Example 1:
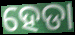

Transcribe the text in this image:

ହେଡା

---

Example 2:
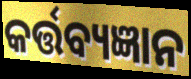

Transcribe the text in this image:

କର୍ତ୍ତବ୍ୟଜ୍ଞାନ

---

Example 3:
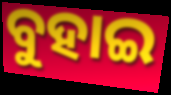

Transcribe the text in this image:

ବୁହାଇ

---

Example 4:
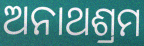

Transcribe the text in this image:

ଅନାଥଶ୍ରମ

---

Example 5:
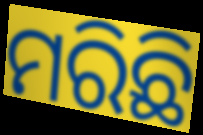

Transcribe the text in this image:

ମରିଛି